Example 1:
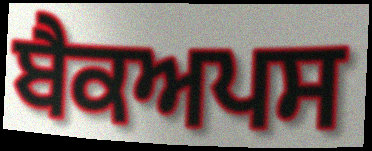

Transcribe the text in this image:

ਬੈਕਅਪਸ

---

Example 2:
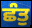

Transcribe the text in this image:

ਛੰਤੁ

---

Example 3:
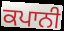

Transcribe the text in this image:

ਕਪਾਨੀ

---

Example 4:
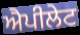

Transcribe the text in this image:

ਐਪੀਲੇਟ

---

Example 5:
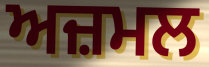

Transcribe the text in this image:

ਅਜ਼ਮਲ